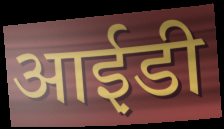
आई़डी